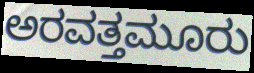
ಅರವತ್ತಮೂರು